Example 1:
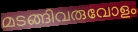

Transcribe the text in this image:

മടങ്ങിവരുവോളം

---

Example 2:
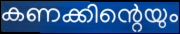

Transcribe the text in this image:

കണക്കിന്റെയും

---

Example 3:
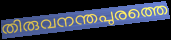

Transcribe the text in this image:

തിരുവനന്തപുരത്തെ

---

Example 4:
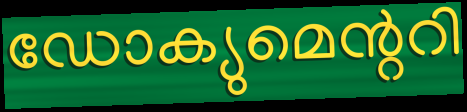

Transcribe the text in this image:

ഡോക്യുമെന്ററി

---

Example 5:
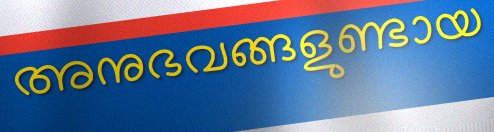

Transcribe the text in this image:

അനുഭവങ്ങളുണ്ടായ